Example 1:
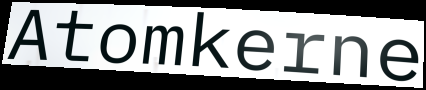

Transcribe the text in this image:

Atomkerne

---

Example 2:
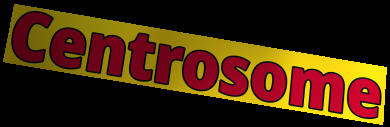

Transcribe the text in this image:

Centrosome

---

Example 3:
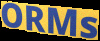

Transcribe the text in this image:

ORMs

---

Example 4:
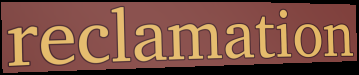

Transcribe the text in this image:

reclamation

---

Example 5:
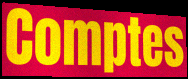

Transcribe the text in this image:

Comptes